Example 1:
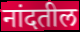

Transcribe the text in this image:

नांदतील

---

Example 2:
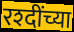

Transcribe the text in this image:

रश्दींच्या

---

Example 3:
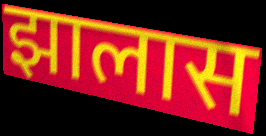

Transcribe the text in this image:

झालास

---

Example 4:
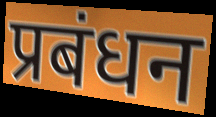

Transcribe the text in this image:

प्रबंधन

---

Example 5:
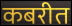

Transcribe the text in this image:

कबरीत